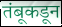
तंबूकडून